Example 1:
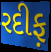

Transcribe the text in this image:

રદીફ઼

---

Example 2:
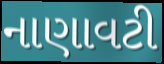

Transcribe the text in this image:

નાણાવટી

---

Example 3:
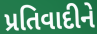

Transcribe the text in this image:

પ્રતિવાદીને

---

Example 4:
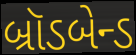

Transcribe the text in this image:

બ્રૉડબેન્ડ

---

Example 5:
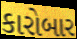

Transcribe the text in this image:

કારોબાર